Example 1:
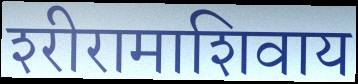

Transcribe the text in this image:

श्रीरामाशिवाय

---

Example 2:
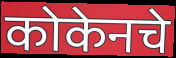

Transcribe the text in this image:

कोकेनचे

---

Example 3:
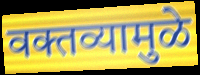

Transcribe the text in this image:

वक्तव्यामुळे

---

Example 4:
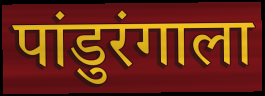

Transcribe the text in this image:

पांडुरंगाला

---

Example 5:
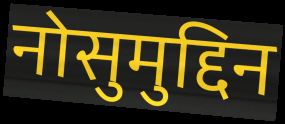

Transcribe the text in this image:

नोसुमुद्दिन